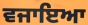
ਵਜਾਇਆ